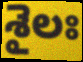
శైలః